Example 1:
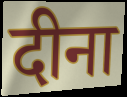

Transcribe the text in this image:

दीना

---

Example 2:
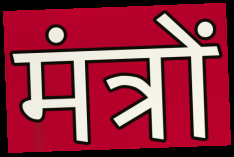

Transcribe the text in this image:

मंत्रों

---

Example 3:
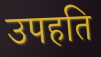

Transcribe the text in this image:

उपहति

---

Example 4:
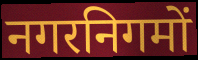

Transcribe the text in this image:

नगरनिगमों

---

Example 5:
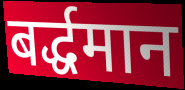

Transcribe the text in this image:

बर्द्धमान